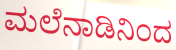
ಮಲೆನಾಡಿನಿಂದ